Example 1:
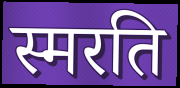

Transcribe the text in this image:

स्मरति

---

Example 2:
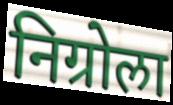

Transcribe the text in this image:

निग्रोला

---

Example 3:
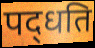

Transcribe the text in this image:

पद्धति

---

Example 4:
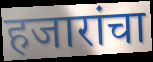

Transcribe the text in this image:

हजारांचा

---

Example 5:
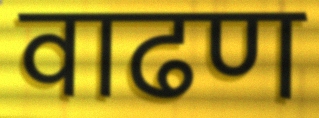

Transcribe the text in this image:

वाढण